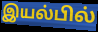
இயல்பில்